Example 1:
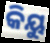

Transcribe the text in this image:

କିୟୁ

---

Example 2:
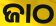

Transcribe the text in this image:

ଜାଠ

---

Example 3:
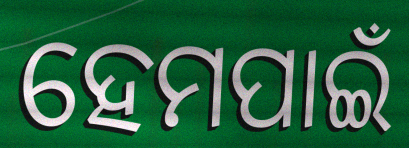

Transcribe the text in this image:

ହେମପାଇଁ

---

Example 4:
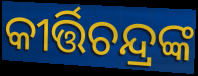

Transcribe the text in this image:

କୀର୍ତ୍ତିଚନ୍ଦ୍ରଙ୍କ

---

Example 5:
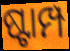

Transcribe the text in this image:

ଷ୍ଟାମ୍ପ